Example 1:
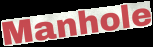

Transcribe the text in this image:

Manhole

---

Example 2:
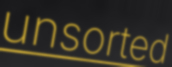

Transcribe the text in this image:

unsorted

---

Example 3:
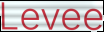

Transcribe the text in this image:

Levee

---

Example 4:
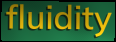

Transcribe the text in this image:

fluidity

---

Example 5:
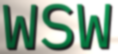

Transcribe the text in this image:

WSW